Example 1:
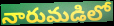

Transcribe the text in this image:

నారుమడిలో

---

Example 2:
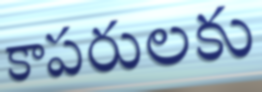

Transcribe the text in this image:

కాపరులకు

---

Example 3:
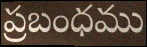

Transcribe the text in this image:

ప్రబంధము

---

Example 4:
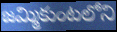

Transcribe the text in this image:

జమ్మికుంటలోని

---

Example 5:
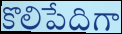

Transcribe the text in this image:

కొలిపేదిగా